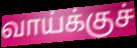
வாய்க்குச்